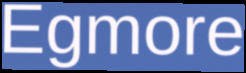
Egmore